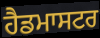
ਹੈਡਮਾਸਟਰ